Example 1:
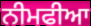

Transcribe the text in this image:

ਨੀਮਫੀਆ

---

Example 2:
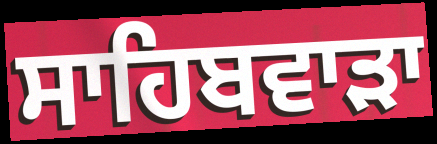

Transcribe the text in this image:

ਸਾਹਿਬਵਾੜਾ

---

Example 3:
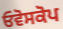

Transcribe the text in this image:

ਓਵੋਸਕੋਪ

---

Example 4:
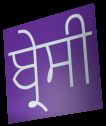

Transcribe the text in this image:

ਬ੍ਰੇਸੀ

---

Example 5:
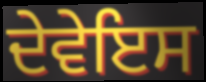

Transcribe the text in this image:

ਦੇਵੇਇਸ